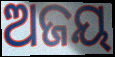
ଅଜୟ